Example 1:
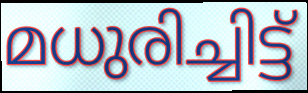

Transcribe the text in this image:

മധുരിച്ചിട്ട്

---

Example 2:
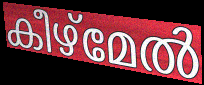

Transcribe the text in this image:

കീഴ്മേൽ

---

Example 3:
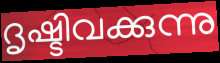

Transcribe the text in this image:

ദൃഷ്ടിവക്കുന്നു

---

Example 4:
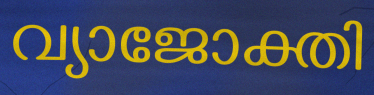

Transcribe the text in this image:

വ്യാജോക്തി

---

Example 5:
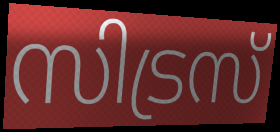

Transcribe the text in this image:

സിട്രസ്